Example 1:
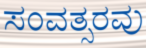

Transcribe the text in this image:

ಸಂವತ್ಸರವು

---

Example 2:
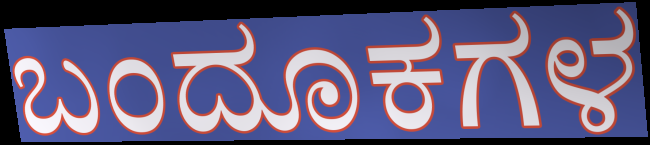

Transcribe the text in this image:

ಬಂದೂಕಗಳ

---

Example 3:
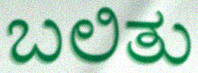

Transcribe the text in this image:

ಬಲಿತು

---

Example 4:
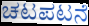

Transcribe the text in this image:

ಚಟಪಟನೆ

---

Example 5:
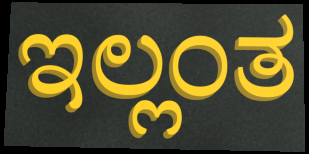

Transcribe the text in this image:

ಇಲ್ಲಂತ